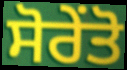
ਸੋਰੇਂਤੋ